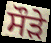
ਸੌੜੇ